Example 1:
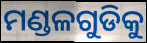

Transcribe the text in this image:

ମଣ୍ଡଳଗୁଡିକୁ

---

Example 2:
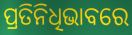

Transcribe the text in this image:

ପ୍ରତିନିଧିଭାବରେ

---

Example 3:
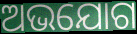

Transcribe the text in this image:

ଅଭଯୋଗ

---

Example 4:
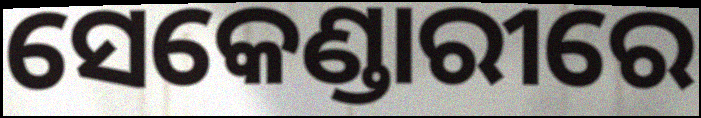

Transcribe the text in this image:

ସେକେଣ୍ଡାରୀରେ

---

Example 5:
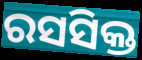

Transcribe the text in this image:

ରସସିକ୍ତ